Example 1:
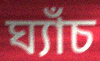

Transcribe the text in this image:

ঘ্যাঁচ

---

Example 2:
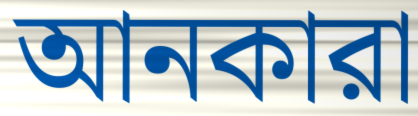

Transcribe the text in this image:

আনকারা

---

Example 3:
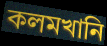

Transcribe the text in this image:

কলমখানি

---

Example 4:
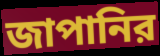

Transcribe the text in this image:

জাপানির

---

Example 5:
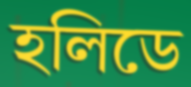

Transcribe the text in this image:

হলিডে